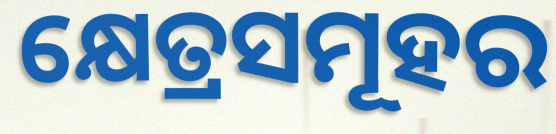
କ୍ଷେତ୍ରସମୂହର